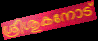
ശ്രീശുകനോട്